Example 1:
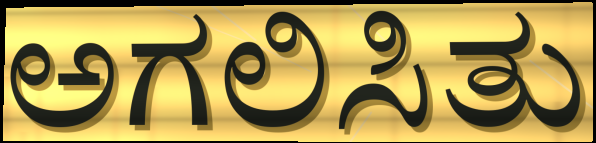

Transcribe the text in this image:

ಅಗಲಿಸಿತು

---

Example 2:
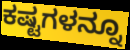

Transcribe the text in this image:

ಕಷ್ಟಗಳನ್ನೂ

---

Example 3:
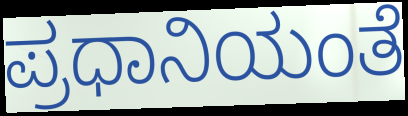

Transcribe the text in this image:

ಪ್ರಧಾನಿಯಂತೆ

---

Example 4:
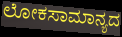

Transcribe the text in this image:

ಲೋಕಸಾಮಾನ್ಯದ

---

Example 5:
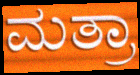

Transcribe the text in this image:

ಮತ್ರಾ